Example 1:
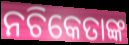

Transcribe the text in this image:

ନଚିକେତାଙ୍କ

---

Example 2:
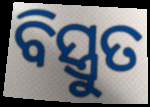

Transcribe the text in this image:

ବିସ୍ତ୍ରୁତ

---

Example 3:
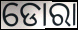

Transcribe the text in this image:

ଡୋରା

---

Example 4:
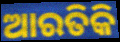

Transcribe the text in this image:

ଆରତିକି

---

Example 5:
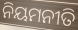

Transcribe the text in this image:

ନିୟମନୀତି